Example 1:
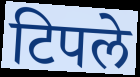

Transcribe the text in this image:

टिपले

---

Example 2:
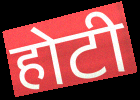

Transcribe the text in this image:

होटी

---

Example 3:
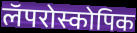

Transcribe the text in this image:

लॅपरोस्कोपिक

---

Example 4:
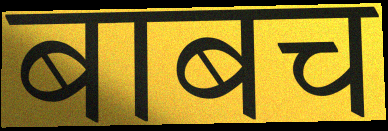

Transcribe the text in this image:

बाबच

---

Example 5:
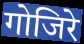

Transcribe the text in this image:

गोजिरे